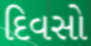
દિવસો